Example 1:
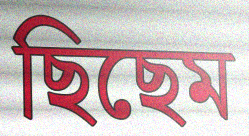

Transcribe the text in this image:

ছিছেম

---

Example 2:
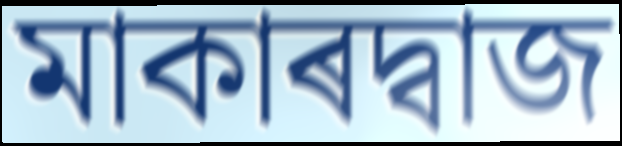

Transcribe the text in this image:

মাকাৰদ্বাজ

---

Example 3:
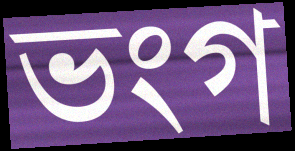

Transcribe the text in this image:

ভংগ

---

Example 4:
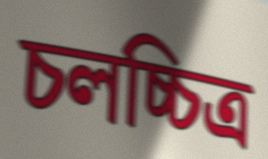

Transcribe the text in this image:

চলচ্চিত্ৰ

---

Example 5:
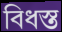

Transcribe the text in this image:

বিধস্ত